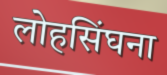
लोहसिंघना